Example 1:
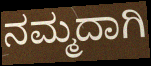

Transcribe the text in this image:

ನಮ್ಮದಾಗಿ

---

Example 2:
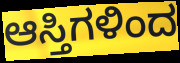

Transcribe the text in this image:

ಆಸ್ತಿಗಳಿಂದ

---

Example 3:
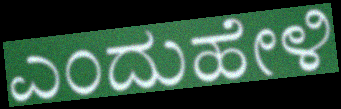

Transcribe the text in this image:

ಎಂದುಹೇಳಿ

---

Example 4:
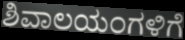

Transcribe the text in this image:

ಶಿವಾಲಯಂಗಳಿಗೆ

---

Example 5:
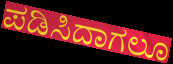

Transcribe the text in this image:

ಪಡಿಸಿದಾಗಲೂ